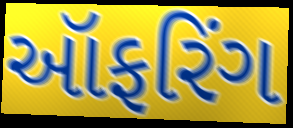
ઑફરિંગ